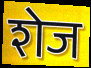
शेज